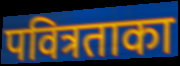
पवित्रताका